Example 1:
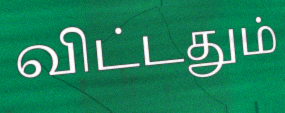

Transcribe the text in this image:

விட்டதும்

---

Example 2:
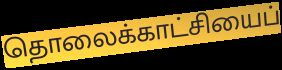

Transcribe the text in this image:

தொலைக்காட்சியைப்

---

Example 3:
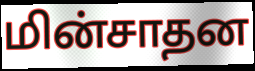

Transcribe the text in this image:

மின்சாதன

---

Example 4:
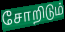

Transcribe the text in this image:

சோறிடும்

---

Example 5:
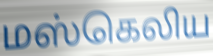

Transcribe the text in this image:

மஸ்கெலிய